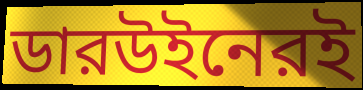
ডারউইনেরই